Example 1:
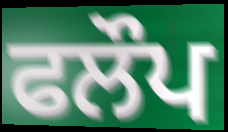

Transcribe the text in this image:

ਫਲੌਪ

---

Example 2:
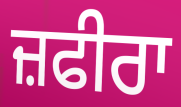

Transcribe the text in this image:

ਜ਼ਫੀਰਾ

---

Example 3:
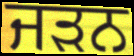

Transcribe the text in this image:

ਜੜਨ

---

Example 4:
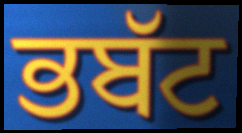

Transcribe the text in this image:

ਭਬੱਟ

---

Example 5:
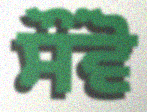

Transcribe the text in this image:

ਸੌਂਵੋ